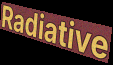
Radiative